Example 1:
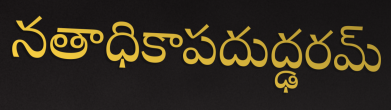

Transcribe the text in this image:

నతాధికాపదుద్ఢరమ్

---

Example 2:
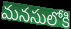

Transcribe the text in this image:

మనసులోకి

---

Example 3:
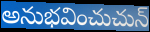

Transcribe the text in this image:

అనుభవించుచున్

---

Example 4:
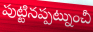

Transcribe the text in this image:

పుట్టినప్పట్నుంచీ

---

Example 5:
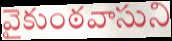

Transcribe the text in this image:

వైకుంఠవాసుని